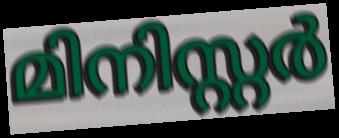
മിനിസ്റ്റർ